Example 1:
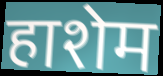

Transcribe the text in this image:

हाशेम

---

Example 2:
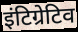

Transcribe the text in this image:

इंटिग्रेटिव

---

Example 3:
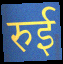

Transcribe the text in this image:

रुई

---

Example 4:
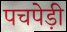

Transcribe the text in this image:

पचपेड़ी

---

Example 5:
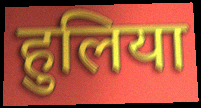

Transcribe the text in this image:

हुलिया